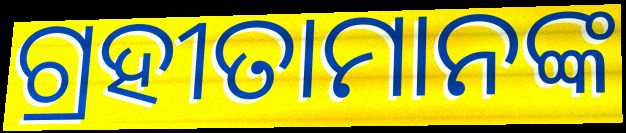
ଗ୍ରହୀତାମାନଙ୍କ